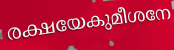
രക്ഷയേകുമീശനേ